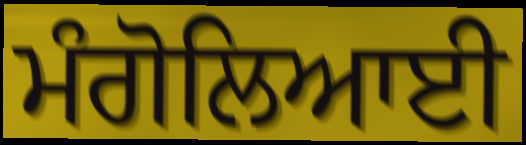
ਮੰਗੋਲਿਆਈ